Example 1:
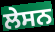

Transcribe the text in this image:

ਲੇਸਨ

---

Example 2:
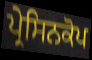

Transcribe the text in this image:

ਪ੍ਰੇਸਿਨਕੋਪ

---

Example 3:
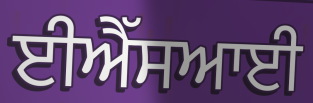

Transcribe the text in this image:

ਈਐੱਸਆਈ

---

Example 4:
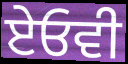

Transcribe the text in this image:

ਏਓਵੀ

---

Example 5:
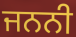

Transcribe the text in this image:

ਜਨਨੀ